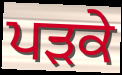
ਪੜਕੇ